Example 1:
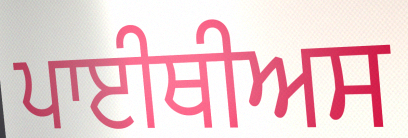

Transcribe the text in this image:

ਪਾਈਥੀਅਸ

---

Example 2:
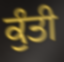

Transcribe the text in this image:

ਕੁੰਤੀ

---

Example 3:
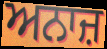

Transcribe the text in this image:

ਅਨਾਜ਼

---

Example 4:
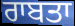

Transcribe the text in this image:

ਰਾਬਤਾ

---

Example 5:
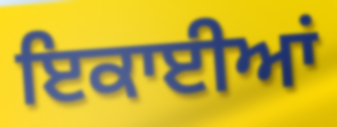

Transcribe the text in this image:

ਇਕਾਈਆਂ